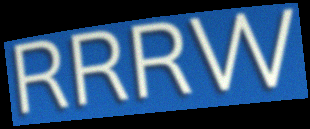
RRRW